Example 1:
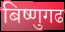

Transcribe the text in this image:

बिष्णुगढ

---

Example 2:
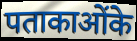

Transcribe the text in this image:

पताकाओंके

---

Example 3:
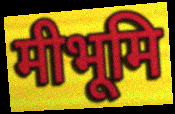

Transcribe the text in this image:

मीभूमि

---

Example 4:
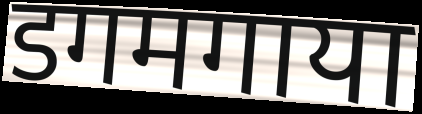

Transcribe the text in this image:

डगमगाया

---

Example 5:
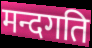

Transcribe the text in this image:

मन्दगति